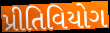
પ્રીતિવિયોગ